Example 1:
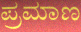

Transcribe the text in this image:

ಪ್ರಮಾಣ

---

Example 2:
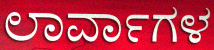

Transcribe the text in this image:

ಲಾರ್ವಾಗಳ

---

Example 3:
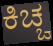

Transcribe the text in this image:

ಕಿಚ್ಚ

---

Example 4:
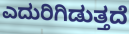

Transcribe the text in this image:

ಎದುರಿಗಿಡುತ್ತದೆ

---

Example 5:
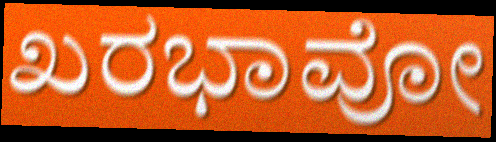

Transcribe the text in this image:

ಖರಭಾವೋ